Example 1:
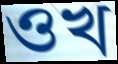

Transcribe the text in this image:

ওখ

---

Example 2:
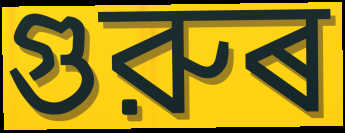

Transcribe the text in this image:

গুৰুৰ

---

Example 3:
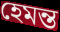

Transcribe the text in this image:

হেমন্ত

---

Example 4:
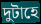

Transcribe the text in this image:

দুটাহে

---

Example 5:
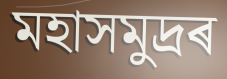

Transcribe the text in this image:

মহাসমুদ্ৰৰ